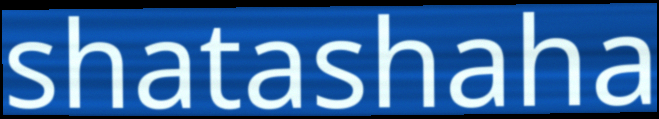
shatashaha